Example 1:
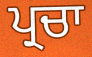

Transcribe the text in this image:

ਪ੍ਰਚਾ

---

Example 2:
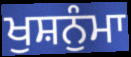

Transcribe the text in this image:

ਖੁਸ਼ਨੁੰਮਾ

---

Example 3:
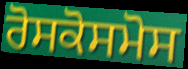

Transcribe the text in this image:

ਰੋਸਕੋਸਮੋਸ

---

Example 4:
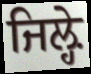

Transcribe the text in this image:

ਜਿਲ਼੍ਹੇ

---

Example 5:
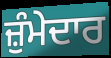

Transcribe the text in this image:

ਜ਼ੁੰਮੇਦਾਰ